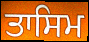
ਤਾਸਿਮ